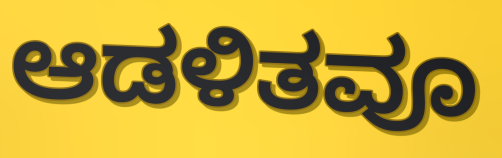
ಆಡಳಿತವೂ